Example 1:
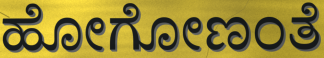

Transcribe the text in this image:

ಹೋಗೋಣಂತೆ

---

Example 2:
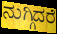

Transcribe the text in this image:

ನುಗ್ಗಿದರೆ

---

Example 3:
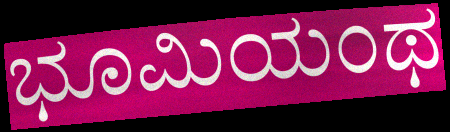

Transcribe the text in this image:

ಭೂಮಿಯಂಥ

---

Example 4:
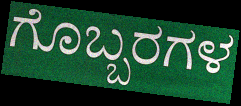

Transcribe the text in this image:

ಗೊಬ್ಬರಗಳ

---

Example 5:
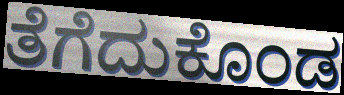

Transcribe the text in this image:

ತೆಗೆದುಕೊಂಡ